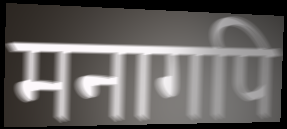
मनागपि